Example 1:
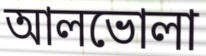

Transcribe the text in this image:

আলভোলা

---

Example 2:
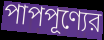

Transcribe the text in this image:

পাপপূণ্যের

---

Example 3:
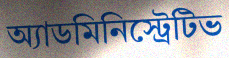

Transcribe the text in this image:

অ্যাডমিনিস্ট্রেটিভ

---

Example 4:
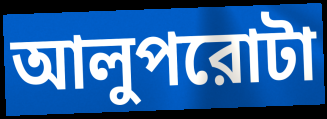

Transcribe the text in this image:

আলুপরোটা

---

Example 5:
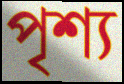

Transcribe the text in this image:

পৃশ্য